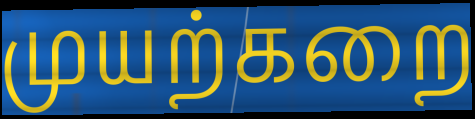
முயற்கறை